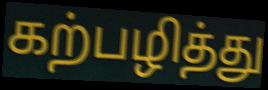
கற்பழித்து